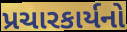
પ્રચારકાર્યનો